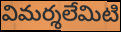
విమర్శలేమిటి